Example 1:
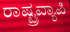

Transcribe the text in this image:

ರಾಷ್ಟ್ರವ್ಯಾಪಿ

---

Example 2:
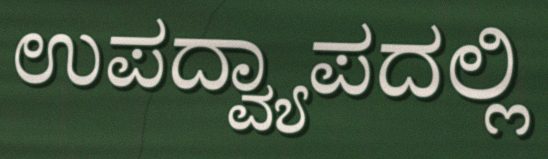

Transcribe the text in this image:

ಉಪದ್ವ್ಯಾಪದಲ್ಲಿ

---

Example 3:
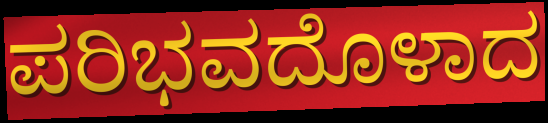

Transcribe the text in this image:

ಪರಿಭವದೊಳಾದ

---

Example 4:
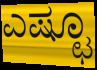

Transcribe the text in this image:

ಎಷ್ಟೂ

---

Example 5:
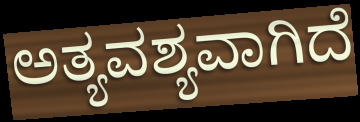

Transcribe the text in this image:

ಅತ್ಯವಶ್ಯವಾಗಿದೆ